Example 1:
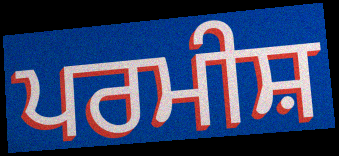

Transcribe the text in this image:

ਪਰਮੀਸ਼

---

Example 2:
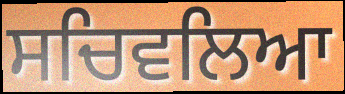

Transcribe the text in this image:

ਸਚਿਵਲਿਆ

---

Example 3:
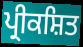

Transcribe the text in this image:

ਪ੍ਰੀਕਸ਼ਿਤ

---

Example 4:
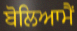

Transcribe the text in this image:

ਬੋਲਿਆਮੈਂ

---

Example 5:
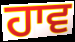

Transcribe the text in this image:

ਹਾਵ